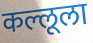
कल्लूला